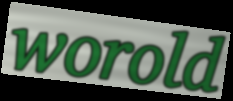
worold